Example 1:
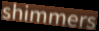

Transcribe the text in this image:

shimmers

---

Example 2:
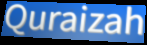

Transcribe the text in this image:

Quraizah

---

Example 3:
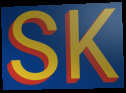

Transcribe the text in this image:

SK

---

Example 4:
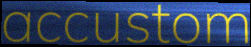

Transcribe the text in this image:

accustom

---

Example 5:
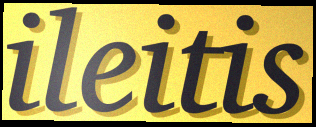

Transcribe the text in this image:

ileitis